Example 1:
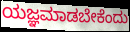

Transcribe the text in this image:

ಯಜ್ಞಮಾಡಬೇಕೆಂದು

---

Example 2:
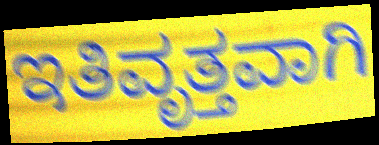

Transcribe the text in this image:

ಇತಿವೃತ್ತವಾಗಿ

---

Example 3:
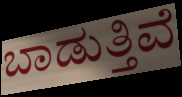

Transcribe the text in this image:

ಬಾಡುತ್ತಿವೆ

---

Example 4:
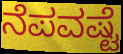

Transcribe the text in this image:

ನೆಪವಷ್ಟೆ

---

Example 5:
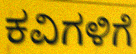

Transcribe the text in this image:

ಕವಿಗಳಿಗೆ